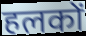
हलकों